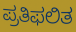
ಪ್ರತಿಫಲಿತ